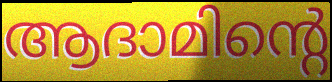
ആദാമിന്റെ